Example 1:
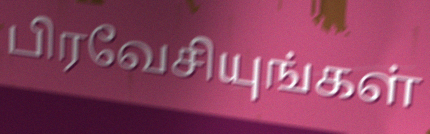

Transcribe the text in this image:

பிரவேசியுங்கள்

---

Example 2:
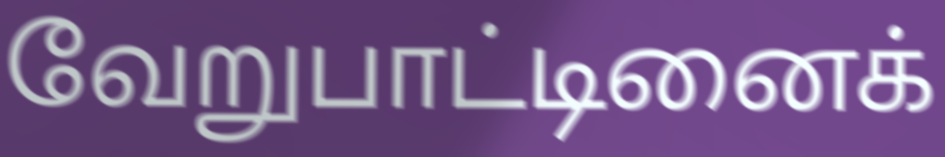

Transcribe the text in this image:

வேறுபாட்டினைக்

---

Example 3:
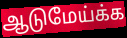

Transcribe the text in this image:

ஆடுமேய்க்க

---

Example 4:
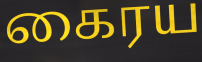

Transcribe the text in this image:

கைரய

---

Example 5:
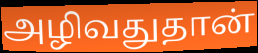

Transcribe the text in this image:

அழிவதுதான்